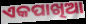
ଏକପାଖିଆ